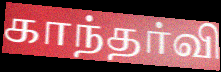
காந்தர்வி